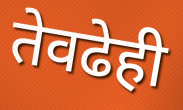
तेवढेही